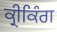
ਕ੍ਰੀਕਿੰਗ